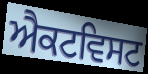
ਐਕਟਵਿਸਟ